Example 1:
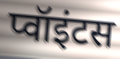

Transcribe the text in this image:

प्वॉइंटस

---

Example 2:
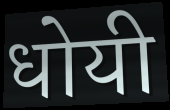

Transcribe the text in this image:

धोयी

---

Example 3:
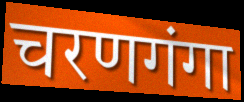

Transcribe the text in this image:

चरणगंगा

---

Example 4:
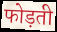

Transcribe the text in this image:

फोड़ती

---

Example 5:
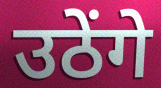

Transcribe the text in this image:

उठेंगे